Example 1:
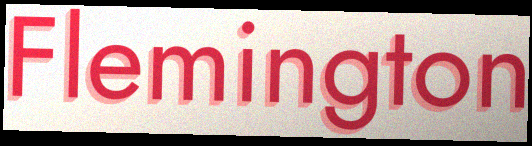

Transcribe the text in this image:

Flemington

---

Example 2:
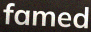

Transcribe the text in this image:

famed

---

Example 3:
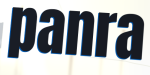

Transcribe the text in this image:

panra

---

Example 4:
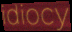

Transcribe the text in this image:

idiocy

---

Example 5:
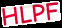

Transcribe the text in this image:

HLPF